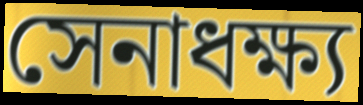
সেনাধক্ষ্য